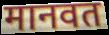
मानवत